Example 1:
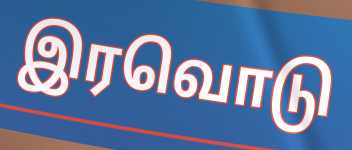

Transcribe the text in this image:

இரவொடு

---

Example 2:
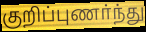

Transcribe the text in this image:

குறிப்புணர்ந்து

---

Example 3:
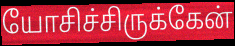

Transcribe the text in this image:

யோசிச்சிருக்கேன்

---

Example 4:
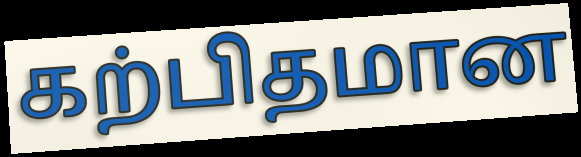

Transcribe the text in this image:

கற்பிதமான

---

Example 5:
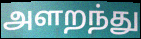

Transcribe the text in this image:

அளறந்து